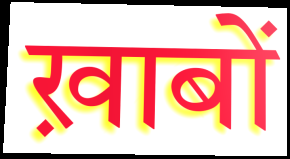
ख़ाबों